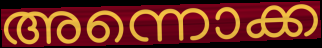
അന്നൊക്ക